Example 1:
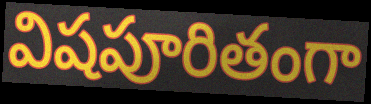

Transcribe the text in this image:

విషపూరితంగా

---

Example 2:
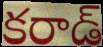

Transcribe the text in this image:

కరాడ్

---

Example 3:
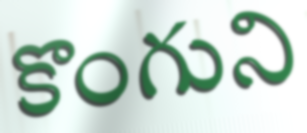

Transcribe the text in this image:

కొంగుని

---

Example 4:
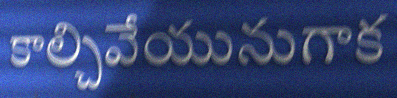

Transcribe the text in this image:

కాల్చివేయునుగాక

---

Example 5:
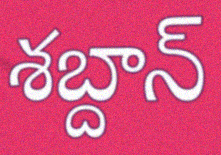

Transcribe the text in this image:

శబ్దాన్